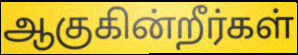
ஆகுகின்றீர்கள்